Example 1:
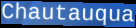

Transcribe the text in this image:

Chautauqua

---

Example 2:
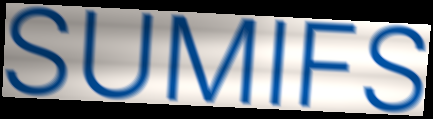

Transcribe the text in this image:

SUMIFS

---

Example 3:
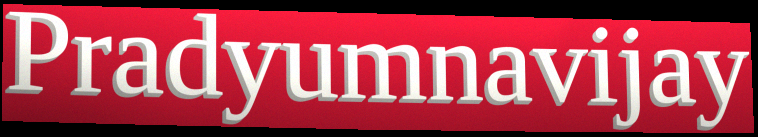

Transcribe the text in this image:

Pradyumnavijay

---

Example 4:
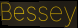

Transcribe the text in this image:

Bessey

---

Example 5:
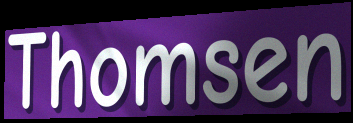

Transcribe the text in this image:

Thomsen